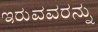
ಇರುವವರನ್ನು